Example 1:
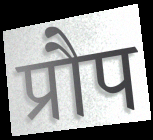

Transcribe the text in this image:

प्रौप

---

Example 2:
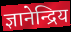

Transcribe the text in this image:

ज्ञानेन्द्रिय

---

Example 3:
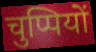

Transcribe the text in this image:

चुप्पियों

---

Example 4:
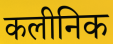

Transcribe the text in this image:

कलीनिक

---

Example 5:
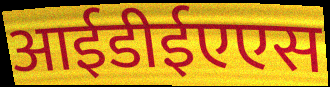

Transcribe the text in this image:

आईडीईएएस